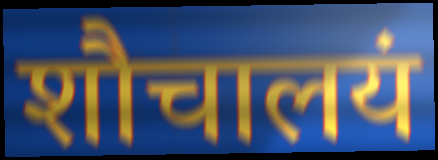
शौचालयं